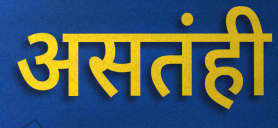
असतंही